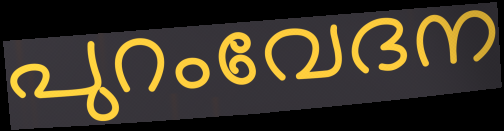
പുറംവേദന